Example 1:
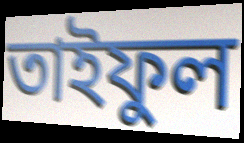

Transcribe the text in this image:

তাইফুল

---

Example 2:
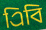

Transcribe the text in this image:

এিবি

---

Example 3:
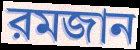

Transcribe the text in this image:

রমজান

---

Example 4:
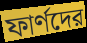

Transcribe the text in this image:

ফার্ণদের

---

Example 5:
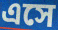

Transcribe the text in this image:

এসে